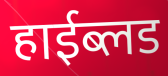
हाईब्लड